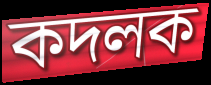
কদলক